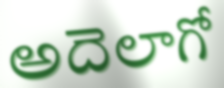
అదెలాగో